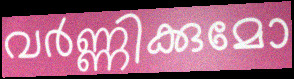
വർണ്ണിക്കുമോ